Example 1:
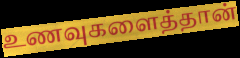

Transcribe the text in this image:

உணவுகளைத்தான்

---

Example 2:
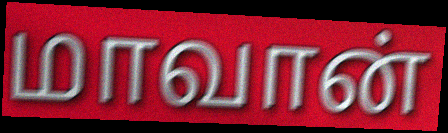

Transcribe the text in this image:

மாவான்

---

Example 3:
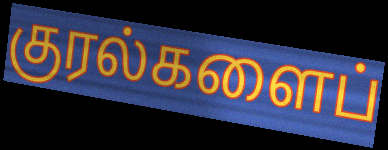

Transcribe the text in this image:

குரல்களைப்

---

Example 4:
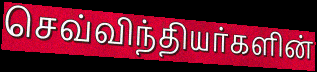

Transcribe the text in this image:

செவ்விந்தியர்களின்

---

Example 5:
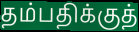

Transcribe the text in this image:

தம்பதிக்குத்